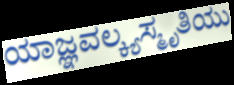
ಯಾಜ್ಞವಲ್ಕ್ಯಸ್ಮೃತಿಯು